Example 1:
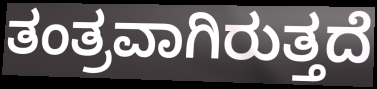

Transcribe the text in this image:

ತಂತ್ರವಾಗಿರುತ್ತದೆ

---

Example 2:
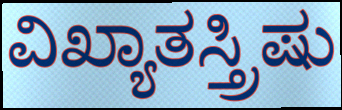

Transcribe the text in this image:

ವಿಖ್ಯಾತಸ್ತ್ರಿಷು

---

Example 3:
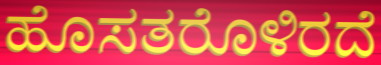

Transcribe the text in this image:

ಹೊಸತರೊಳಿರದೆ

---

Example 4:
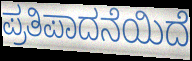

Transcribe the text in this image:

ಪ್ರತಿಪಾದನೆಯಿದೆ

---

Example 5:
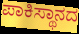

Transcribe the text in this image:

ಪಾಕಿಸ್ಥಾನದ